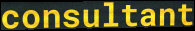
consultant